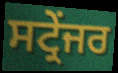
ਸਟ੍ਰੇਂਜਰ